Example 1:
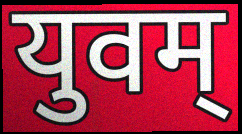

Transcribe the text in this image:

युवम्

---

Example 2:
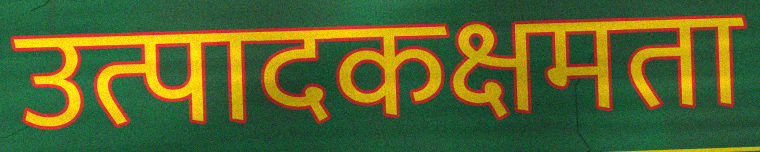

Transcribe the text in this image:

उत्पादकक्षमता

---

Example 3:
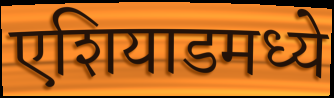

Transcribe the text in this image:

एशियाडमध्ये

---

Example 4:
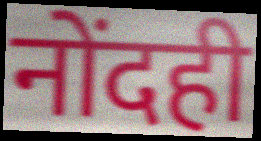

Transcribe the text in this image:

नोंदही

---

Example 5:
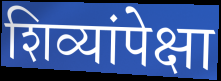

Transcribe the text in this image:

शिव्यांपेक्षा